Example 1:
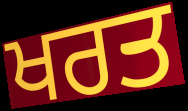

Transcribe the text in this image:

ਖਰਤ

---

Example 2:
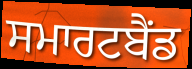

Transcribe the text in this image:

ਸਮਾਰਟਬੈਂਡ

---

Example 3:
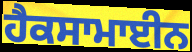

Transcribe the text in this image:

ਹੈਕਸਾਮਾਈਨ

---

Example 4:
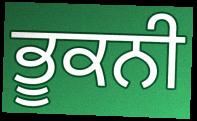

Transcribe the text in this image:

ਭੂਕਨੀ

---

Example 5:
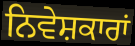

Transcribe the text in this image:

ਨਿਵੇਸ਼ਕਾਰਾਂ